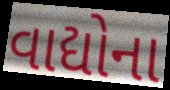
વાદ્યોના